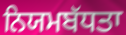
ਨਿਯਮਬੱਧਤਾ